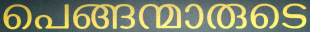
പെങ്ങന്മാരുടെ